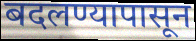
बदलण्यापासून